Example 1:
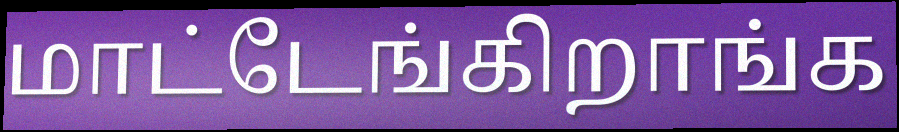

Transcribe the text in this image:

மாட்டேங்கிறாங்க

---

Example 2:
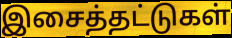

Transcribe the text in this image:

இசைத்தட்டுகள்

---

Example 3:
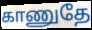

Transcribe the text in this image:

காணுதே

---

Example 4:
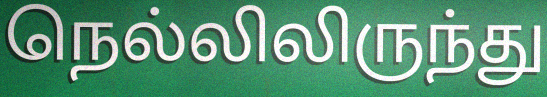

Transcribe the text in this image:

நெல்லிலிருந்து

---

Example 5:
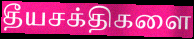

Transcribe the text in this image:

தீயசக்திகளை